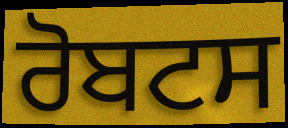
ਰੋਬਟਸ